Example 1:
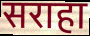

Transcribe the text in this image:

सराहा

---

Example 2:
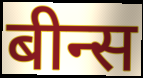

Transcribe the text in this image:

बीन्स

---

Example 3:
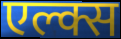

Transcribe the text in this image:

एल्क्स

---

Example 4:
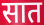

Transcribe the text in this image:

सात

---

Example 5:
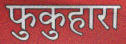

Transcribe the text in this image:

फुकुहारा